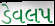
ડેવલપ